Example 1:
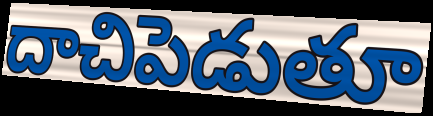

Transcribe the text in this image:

దాచిపెడుతూ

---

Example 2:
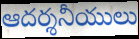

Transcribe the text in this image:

ఆదర్శనీయులు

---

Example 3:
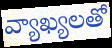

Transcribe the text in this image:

వ్యాఖ్యలతో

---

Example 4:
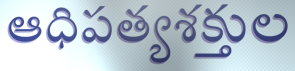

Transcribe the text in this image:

ఆధిపత్యశక్తుల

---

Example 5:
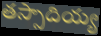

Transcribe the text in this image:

తస్సాదియ్య